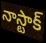
నాస్టాక్